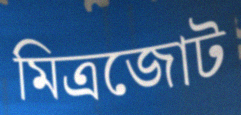
মিত্রজোট